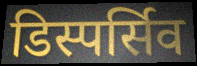
डिस्पर्सिव